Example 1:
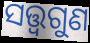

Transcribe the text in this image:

ସତ୍ତ୍ୱଗୁଣ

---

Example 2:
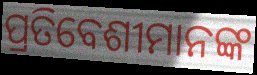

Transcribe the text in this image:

ପ୍ରତିବେଶୀମାନଙ୍କ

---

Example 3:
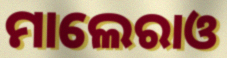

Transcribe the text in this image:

ମାଲେରାଓ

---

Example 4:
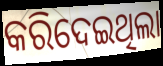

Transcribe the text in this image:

କରିଦେଇଥିଲା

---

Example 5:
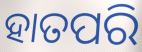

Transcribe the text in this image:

ହାତପରି